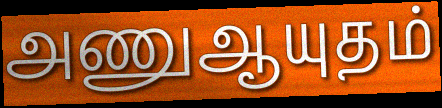
அணுஆயுதம்